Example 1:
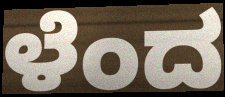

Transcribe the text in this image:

ಳೆಂದ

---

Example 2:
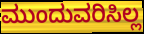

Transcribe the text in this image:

ಮುಂದುವರಿಸಿಲ್ಲ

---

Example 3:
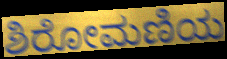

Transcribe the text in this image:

ಶಿರೋಮಣಿಯ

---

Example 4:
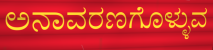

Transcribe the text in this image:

ಅನಾವರಣಗೊಳ್ಳುವ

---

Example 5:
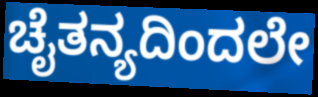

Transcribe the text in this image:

ಚೈತನ್ಯದಿಂದಲೇ